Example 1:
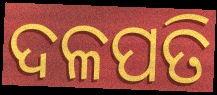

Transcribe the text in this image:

ଦଳପତି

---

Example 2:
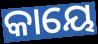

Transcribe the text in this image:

କାୟେ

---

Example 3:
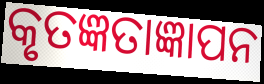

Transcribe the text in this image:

କୃତଜ୍ଞତାଜ୍ଞାପନ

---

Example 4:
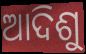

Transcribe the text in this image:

ଆଦିଶୁ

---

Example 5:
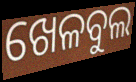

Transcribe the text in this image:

ଖେଳବୁଲ